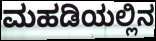
ಮಹಡಿಯಲ್ಲಿನ